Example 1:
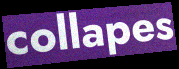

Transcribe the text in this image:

collapes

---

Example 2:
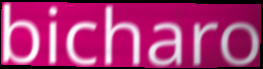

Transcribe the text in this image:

bicharo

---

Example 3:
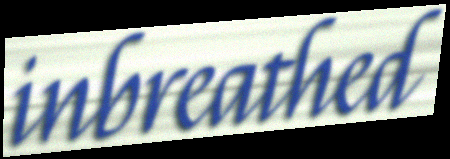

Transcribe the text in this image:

inbreathed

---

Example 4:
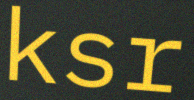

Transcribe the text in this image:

ksr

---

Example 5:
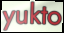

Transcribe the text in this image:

yukto